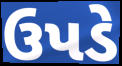
ઉપડે